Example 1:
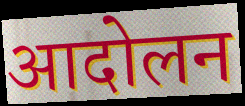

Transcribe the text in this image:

आदोलन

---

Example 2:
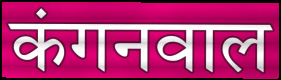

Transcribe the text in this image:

कंगनवाल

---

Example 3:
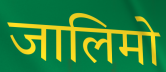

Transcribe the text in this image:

जालिमो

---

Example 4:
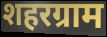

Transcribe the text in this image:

शहरग्राम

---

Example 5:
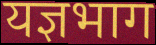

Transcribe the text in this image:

यज्ञभाग